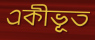
একীভূত